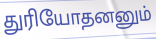
துரியோதனனும்